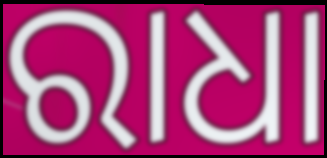
ରାଧା